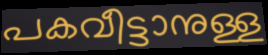
പകവീട്ടാനുള്ള